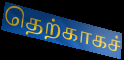
தெற்காகச்